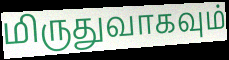
மிருதுவாகவும்